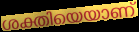
ശക്തിയെയാണ്